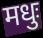
मधुः